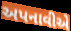
અપનાવીએ